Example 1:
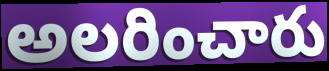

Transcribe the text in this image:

అలరించారు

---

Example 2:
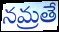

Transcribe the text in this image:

నమ్రతే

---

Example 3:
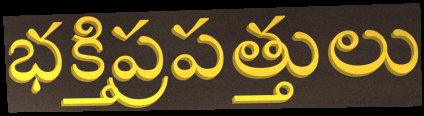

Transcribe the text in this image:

భక్తిప్రపత్తులు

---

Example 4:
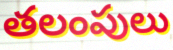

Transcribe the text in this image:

తలంపులు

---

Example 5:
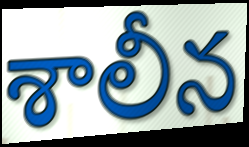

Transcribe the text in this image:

శాలీన